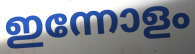
ഇന്നോളം